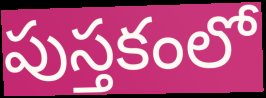
పుస్తకంలో